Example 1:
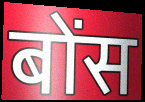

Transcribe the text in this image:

बोंस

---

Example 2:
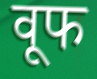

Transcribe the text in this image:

वूफ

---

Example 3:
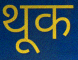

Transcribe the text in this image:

थूक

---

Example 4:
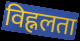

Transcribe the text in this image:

विह्नलता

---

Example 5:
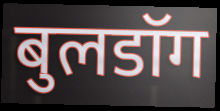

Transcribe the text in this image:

बुलडॉग